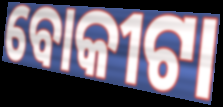
ବୋକୀଟା